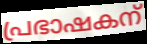
പ്രഭാഷകന്